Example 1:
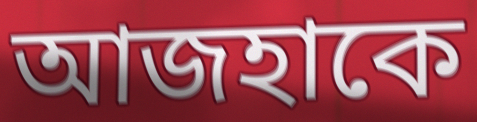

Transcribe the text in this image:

আজহাকে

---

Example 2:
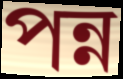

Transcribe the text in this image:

পন্ন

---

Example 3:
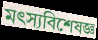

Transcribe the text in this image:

মৎস্যবিশেষজ্ঞ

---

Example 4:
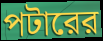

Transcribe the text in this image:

পটারের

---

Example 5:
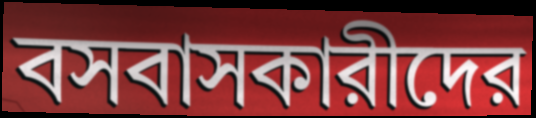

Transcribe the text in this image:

বসবাসকারীদের